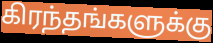
கிரந்தங்களுக்கு